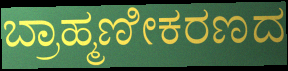
ಬ್ರಾಹ್ಮಣೀಕರಣದ